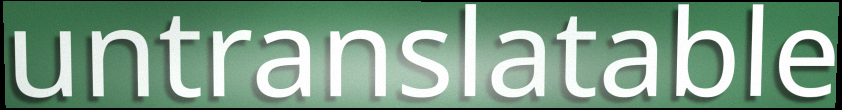
untranslatable